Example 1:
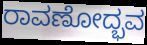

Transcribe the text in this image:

ರಾವಣೋದ್ಭವ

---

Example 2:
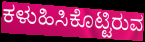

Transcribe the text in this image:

ಕಳುಹಿಸಿಕೊಟ್ಟಿರುವ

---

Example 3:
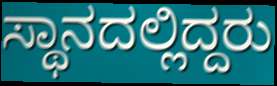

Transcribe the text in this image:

ಸ್ಥಾನದಲ್ಲಿದ್ದರು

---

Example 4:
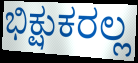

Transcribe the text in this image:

ಭಿಕ್ಷುಕರಲ್ಲ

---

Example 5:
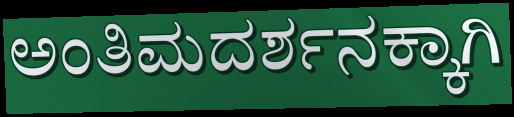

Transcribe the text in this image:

ಅಂತಿಮದರ್ಶನಕ್ಕಾಗಿ